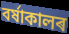
বৰ্ষাকালৰ